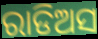
ରାଡିଅସ